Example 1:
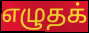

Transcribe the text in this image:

எழுதக்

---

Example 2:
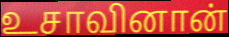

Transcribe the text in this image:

உசாவினான்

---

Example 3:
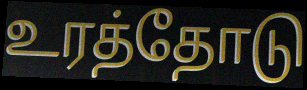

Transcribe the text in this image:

உரத்தோடு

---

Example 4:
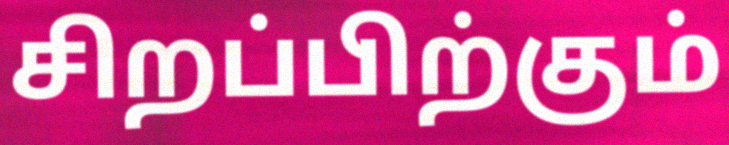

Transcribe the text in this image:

சிறப்பிற்கும்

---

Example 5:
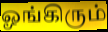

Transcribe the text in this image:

ஓங்கிரும்